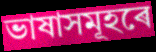
ভাষাসমূহৰে